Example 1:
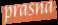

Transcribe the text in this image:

prasna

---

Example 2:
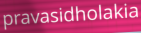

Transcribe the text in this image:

pravasidholakia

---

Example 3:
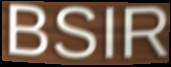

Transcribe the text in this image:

BSIR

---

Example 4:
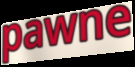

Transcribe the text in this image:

pawne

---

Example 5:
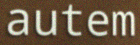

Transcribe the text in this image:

autem